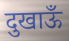
दुखाऊँ